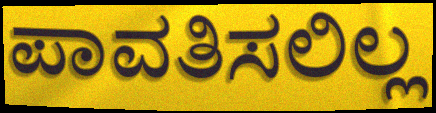
ಪಾವತಿಸಲಿಲ್ಲ